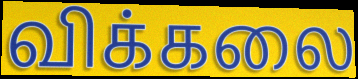
விக்கலை